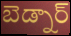
బెడ్నార్